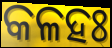
କଳହଃ